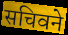
सचिवने